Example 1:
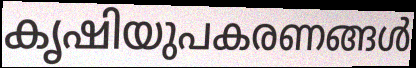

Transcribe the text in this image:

കൃഷിയുപകരണങ്ങൾ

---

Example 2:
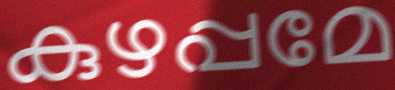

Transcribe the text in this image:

കുഴപ്പമേ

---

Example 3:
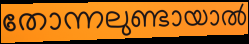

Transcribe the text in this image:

തോന്നലുണ്ടായാൽ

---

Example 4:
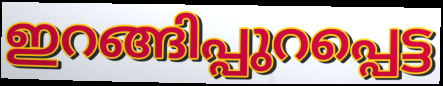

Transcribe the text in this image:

ഇറങ്ങിപ്പുറപ്പെട്ട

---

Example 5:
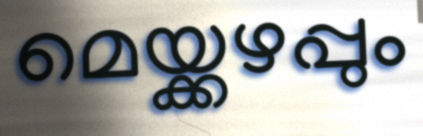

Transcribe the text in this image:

മെയ്ക്കഴപ്പും